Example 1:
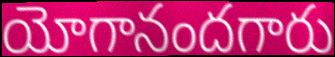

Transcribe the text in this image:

యోగానందగారు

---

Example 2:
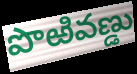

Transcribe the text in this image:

పొఱివణ్డు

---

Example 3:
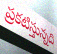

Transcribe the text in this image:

ప్రకటిస్తున్నది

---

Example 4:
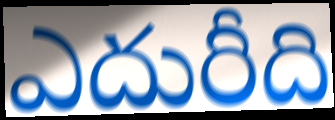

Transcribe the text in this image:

ఎదురీది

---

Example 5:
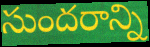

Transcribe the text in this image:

సుందరాన్ని